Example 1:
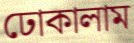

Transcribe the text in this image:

ঢোকালাম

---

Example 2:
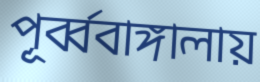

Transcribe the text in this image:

পূর্ব্ববাঙ্গালায়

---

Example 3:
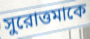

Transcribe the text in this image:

সুরোত্তমাকে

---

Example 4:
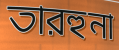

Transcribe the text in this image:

তারহুনা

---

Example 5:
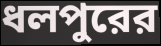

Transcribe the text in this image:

ধলপুরের